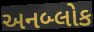
અનબ્લોક